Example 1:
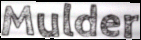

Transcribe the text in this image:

Mulder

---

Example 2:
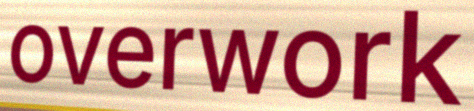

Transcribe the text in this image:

overwork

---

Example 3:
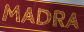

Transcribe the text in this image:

MADRA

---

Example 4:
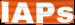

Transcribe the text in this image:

IAPs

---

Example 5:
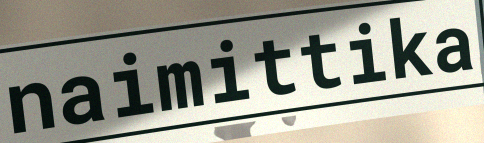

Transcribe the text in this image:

naimittika